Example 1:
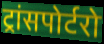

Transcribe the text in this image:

ट्रांसपोर्टरो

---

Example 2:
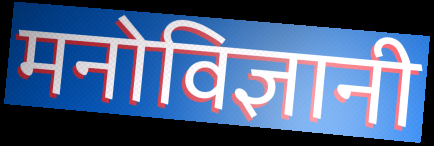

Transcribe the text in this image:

मनोविज्ञानी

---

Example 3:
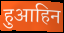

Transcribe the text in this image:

हुआहिन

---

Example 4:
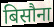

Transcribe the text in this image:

बिसौना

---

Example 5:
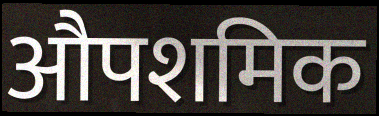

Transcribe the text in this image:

औपशमिक